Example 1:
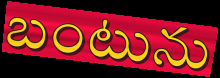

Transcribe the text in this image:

బంటును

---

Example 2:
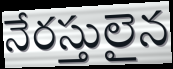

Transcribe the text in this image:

నేరస్తులైన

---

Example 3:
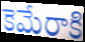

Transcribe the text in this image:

కెమేరాకి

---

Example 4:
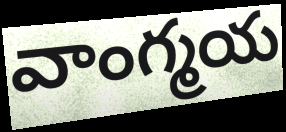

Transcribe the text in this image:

వాంగ్మయ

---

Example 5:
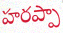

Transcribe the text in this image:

హరప్పా